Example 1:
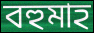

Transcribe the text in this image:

বহুমাহ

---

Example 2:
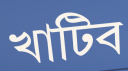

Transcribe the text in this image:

খাটিব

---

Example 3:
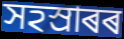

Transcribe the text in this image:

সহস্ৰাৰৰ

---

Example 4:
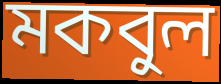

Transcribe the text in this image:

মকবুল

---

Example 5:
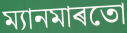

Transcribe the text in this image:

ম্যানমাৰতো